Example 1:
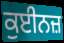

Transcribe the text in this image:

ਕੁਈਨਜ਼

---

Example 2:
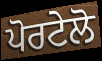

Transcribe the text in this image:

ਪੋਰਟੇਲੋ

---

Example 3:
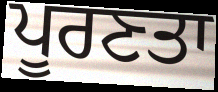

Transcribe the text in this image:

ਪੂਰਣਤਾ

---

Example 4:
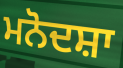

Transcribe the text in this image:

ਮਨੋਦਸ਼ਾ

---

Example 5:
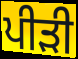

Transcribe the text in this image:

ਪੀੜੀ